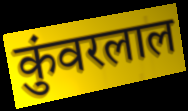
कुंवरलाल